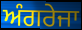
ਅੰਗਰੇਜਾ